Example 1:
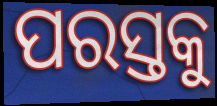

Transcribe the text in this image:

ପରସ୍ତକୁ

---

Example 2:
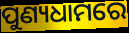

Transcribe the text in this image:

ପୁଣ୍ୟଧାମରେ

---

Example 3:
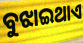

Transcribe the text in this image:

ବୁଝାଇଥାଏ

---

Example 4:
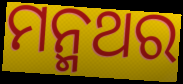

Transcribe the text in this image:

ମନ୍ମଥର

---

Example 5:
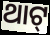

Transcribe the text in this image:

ଥାଟ୍